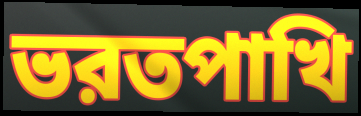
ভরতপাখি